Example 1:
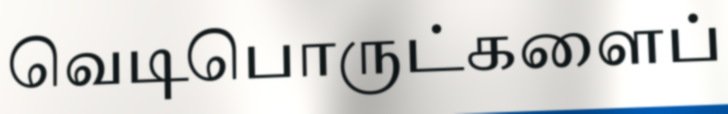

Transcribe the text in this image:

வெடிபொருட்களைப்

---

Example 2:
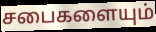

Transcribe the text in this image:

சபைகளையும்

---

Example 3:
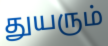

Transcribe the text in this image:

துயரும்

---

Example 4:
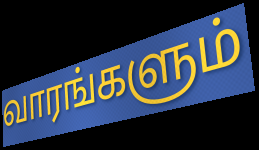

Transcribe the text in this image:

வாரங்களும்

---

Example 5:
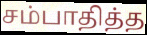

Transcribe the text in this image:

சம்பாதித்த